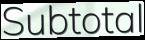
Subtotal